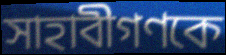
সাহাবীগণকে